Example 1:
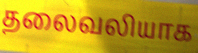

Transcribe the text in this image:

தலைவலியாக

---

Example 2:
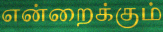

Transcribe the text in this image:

என்றைக்கும்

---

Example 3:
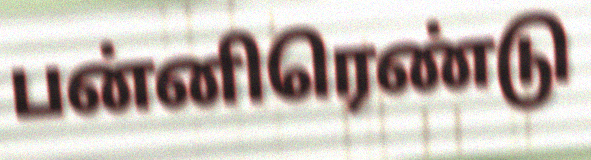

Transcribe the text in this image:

பன்னிரெண்டு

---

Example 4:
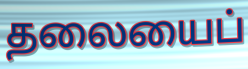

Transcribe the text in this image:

தலையைப்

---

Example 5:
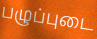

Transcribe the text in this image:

பழுப்புடை